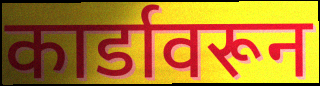
कार्डावरून